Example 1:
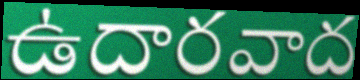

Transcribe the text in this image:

ఉదారవాద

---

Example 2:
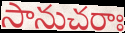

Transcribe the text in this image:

సానుచరాః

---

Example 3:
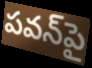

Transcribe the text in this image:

పవన్‌పై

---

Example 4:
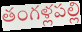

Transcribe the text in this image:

తంగళ్లపల్లి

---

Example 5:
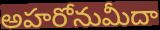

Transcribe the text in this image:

అహరోనుమీదా